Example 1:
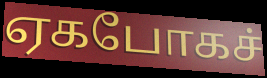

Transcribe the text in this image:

ஏகபோகச்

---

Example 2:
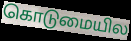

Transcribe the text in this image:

கொடுமையில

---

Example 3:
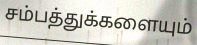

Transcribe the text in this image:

சம்பத்துக்களையும்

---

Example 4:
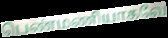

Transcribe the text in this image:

பெண்மணியாகவே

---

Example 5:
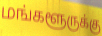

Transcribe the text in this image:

மங்களூருக்கு